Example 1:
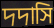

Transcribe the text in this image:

দদাসি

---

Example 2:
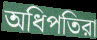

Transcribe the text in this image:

অধিপতিরা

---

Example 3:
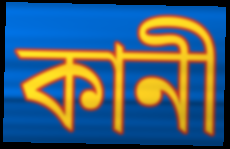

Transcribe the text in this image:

কানী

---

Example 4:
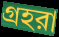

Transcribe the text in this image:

গ্রহরা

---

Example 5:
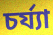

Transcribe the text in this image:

চর্য্যা